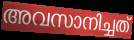
അവസാനിച്ചത്